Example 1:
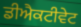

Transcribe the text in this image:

ਡੀਐਕਟੀਵੇਟ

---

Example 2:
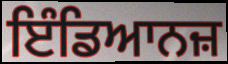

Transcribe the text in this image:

ਇੰਡਿਆਨਜ਼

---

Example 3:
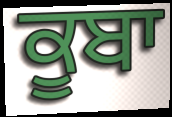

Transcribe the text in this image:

ਕੂਬਾ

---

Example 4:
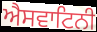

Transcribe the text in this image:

ਐਸਵਾਟਿਨੀ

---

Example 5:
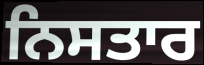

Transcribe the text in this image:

ਨਿਸਤਾਰ